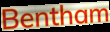
Bentham